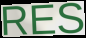
RES